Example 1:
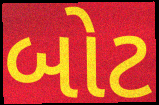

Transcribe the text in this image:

બોટ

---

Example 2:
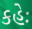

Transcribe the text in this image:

કહેઃ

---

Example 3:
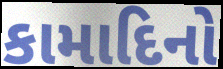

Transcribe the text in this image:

કામાદિનો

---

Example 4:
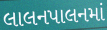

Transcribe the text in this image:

લાલનપાલનમાં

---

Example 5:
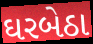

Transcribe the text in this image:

ઘરબેઠા